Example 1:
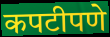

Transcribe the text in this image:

कपटीपणे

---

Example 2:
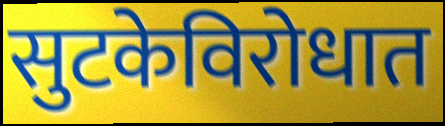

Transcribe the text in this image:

सुटकेविरोधात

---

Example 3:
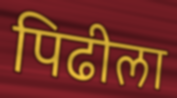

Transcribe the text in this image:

पिढीला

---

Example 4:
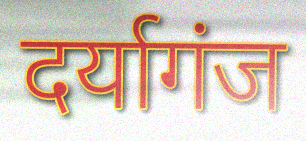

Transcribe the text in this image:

दर्यागंज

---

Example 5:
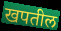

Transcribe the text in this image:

खपतील